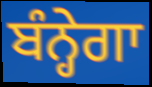
ਬੰਨ੍ਹੇਗਾ